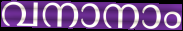
വനാനാം